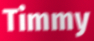
Timmy